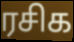
ரசிக